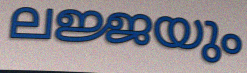
ലജ്ജയും